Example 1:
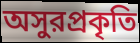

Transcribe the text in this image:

অসুরপ্রকৃতি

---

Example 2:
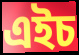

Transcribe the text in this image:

এইচ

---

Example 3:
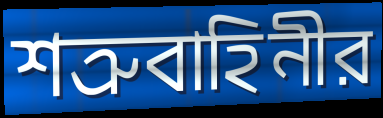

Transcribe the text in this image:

শত্রুবাহিনীর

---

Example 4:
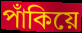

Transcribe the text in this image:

পাঁকিয়ে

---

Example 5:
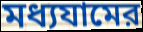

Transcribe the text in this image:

মধ্যযামের